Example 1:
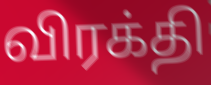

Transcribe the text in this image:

விரக்தி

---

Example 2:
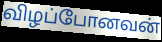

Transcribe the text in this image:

விழப்போனவன்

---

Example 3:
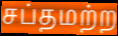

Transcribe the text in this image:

சப்தமற்ற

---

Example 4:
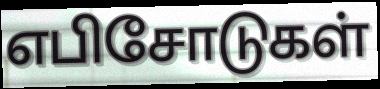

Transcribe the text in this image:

எபிசோடுகள்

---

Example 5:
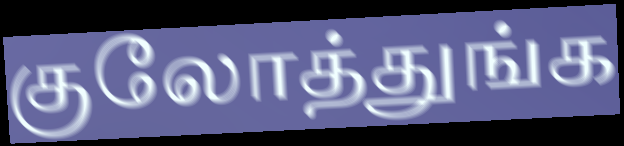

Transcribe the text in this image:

குலோத்துங்க